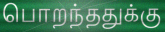
பொறந்ததுக்கு